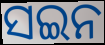
ସଇନ